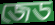
জেড